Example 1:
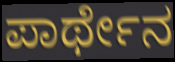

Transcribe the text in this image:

ಪಾರ್ಥೇನ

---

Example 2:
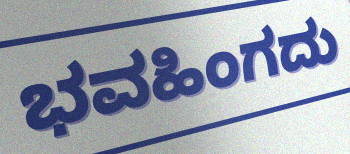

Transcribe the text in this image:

ಭವಹಿಂಗದು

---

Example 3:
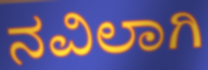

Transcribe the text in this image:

ನವಿಲಾಗಿ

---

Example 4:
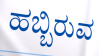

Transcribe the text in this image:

ಹಬ್ಬಿರುವ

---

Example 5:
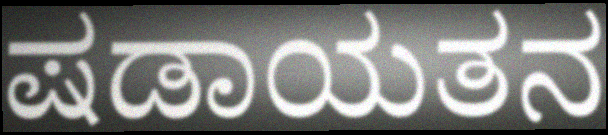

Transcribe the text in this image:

ಷಡಾಯತನ